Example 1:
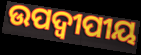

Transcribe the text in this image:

ଉପଦ୍ଵୀପୀୟ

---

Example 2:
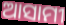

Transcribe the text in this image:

ଆସାମୀ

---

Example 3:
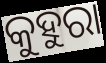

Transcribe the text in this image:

କୁହୁରା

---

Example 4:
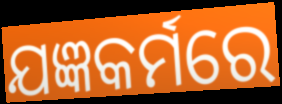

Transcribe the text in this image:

ଯଜ୍ଞକର୍ମରେ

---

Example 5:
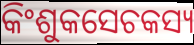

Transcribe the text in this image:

କିଂଶୁକସେଚକସ୍ୟ